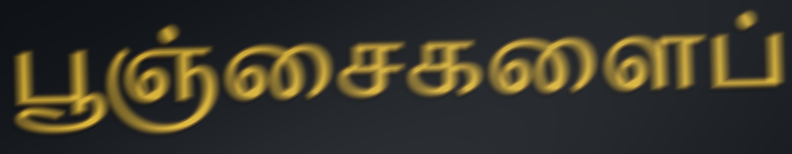
பூஞ்சைகளைப்